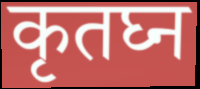
कृतघ्न